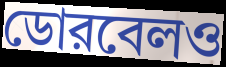
ডোরবেলও